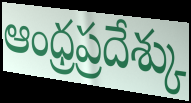
ఆంధ్రప్రదేశ్కు